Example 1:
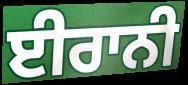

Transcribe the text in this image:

ਈਰਾਨੀ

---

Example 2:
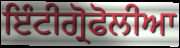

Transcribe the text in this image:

ਇੰਟੀਗ੍ਰੋਫੋਲੀਆ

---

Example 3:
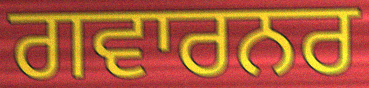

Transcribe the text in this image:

ਗਵਾਰਨਰ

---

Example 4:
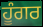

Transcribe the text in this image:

ਹੂੰਗਰ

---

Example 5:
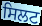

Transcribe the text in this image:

ਸਿਲਟ